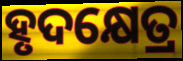
ହୃଦକ୍ଷେତ୍ର